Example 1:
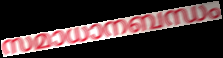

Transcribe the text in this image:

സമാധാനബന്ധം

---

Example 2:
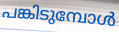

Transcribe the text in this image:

പങ്കിടുമ്പോൾ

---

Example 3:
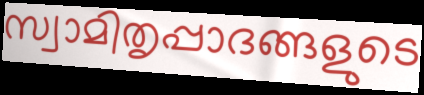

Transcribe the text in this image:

സ്വാമിതൃപ്പാദങ്ങളുടെ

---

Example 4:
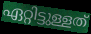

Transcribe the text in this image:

ഏറ്റിട്ടുള്ളത്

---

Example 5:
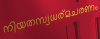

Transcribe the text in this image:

നിയതസ്വധര്മചരണം